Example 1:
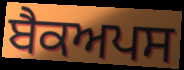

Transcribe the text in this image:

ਬੈਕਅਪਸ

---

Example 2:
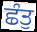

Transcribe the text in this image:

ਛੰਤੁ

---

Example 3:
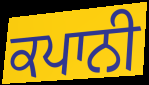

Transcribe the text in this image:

ਕਪਾਨੀ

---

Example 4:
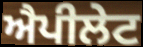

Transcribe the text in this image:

ਐਪੀਲੇਟ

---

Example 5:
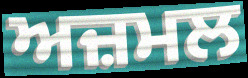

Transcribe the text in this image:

ਅਜ਼ਮਲ